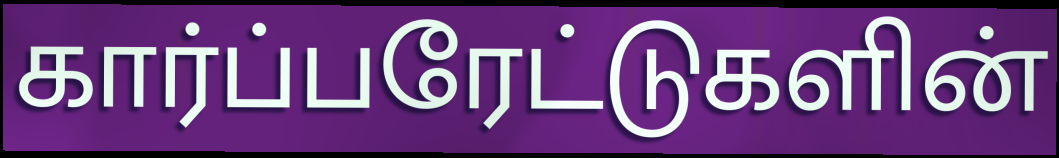
கார்ப்பரேட்டுகளின்